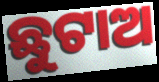
ଛୁଟାଅ